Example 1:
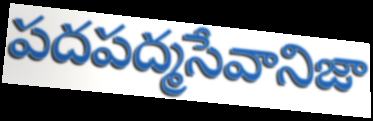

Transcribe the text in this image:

పదపద్మసేవానిజా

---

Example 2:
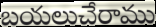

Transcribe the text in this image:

బయలుచేరాము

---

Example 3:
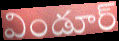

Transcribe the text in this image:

విండూర్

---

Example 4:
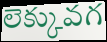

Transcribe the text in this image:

లెక్కువగ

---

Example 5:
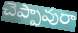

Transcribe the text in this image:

చెప్పావురా